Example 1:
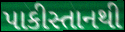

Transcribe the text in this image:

પાકીસ્તાનથી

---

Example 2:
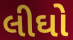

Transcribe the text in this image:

લીઘો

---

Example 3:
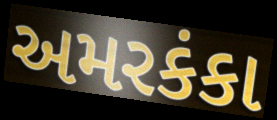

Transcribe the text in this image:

અમરકંકા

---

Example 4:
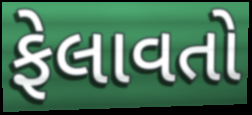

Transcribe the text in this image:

ફેલાવતો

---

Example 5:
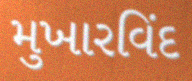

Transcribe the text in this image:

મુખારવિંદ